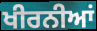
ਖੀਰਨੀਆਂ